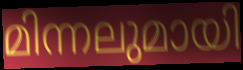
മിന്നലുമായി